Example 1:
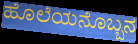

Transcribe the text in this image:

ಹೊಲೆಯನೊಬ್ಬನ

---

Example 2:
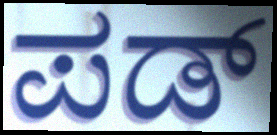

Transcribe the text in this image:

ಪಡ್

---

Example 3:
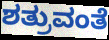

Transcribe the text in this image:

ಶತ್ರುವಂತೆ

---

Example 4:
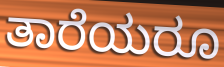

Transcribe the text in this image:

ತಾರೆಯರೂ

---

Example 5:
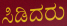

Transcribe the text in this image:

ಸಿಡಿದರು